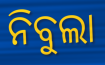
ନିବୁଲା